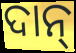
ଦାନ୍